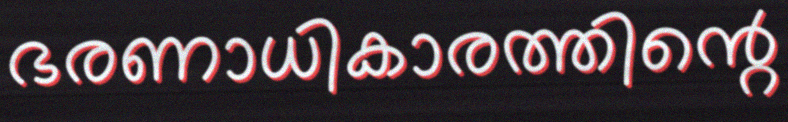
ഭരണാധികാരത്തിന്റെ